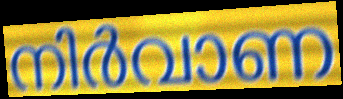
നിർവാണ